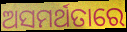
ଅସମର୍ଥତାରେ